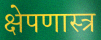
क्षेपणास्त्र